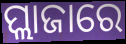
ପ୍ଲାଜାରେ